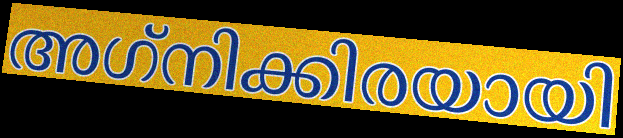
അഗ്‌നിക്കിരയായി